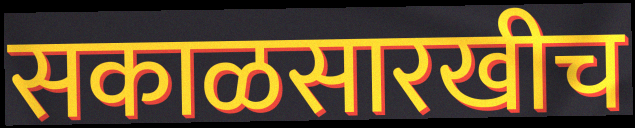
सकाळसारखीच